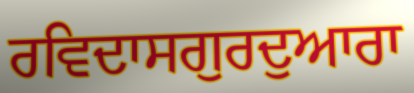
ਰਵਿਦਾਸਗੁਰਦੁਆਰਾ